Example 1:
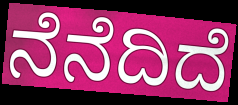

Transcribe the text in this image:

ನೆನೆದಿದೆ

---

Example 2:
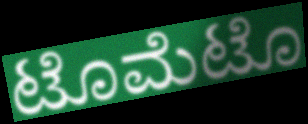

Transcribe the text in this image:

ಟೊಮೆಟೊ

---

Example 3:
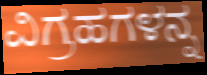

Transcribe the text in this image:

ವಿಗ್ರಹಗಳನ್ನ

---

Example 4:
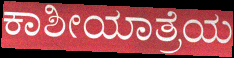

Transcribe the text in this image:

ಕಾಶೀಯಾತ್ರೆಯ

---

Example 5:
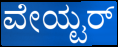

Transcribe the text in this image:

ವೇಯ್ಟರ್